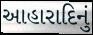
આહારાદિનું